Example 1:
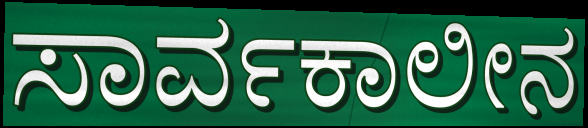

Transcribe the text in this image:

ಸಾರ್ವಕಾಲೀನ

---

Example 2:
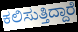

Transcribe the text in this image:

ಕಲಿಸುತ್ತಿದ್ದಾರೆ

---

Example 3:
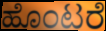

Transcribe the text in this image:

ಹೊಂಟರೆ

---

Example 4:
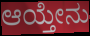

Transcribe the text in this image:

ಆಯ್ತೇನು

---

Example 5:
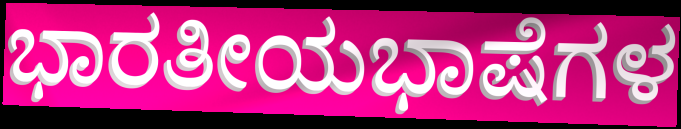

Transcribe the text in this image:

ಭಾರತೀಯಭಾಷೆಗಳ